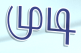
முடி